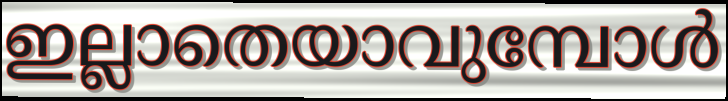
ഇല്ലാതെയാവുമ്പോൾ